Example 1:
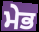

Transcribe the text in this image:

ਮੇਭ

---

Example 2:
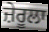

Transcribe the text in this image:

ਜ਼ੇਰੂਲਾ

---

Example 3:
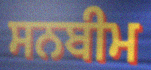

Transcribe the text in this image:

ਸਨਬੀਮ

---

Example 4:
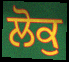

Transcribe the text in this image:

ਲੋਕੁ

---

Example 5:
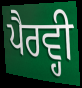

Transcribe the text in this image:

ਪੈਰਵ੍ਹੀ